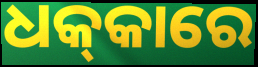
ଧକ୍‍କାରେ